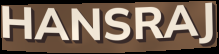
HANSRAJ